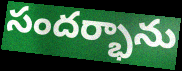
సందర్భాను